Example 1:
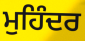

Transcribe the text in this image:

ਮੁਹਿੰਦਰ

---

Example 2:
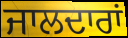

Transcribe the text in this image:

ਜਾਲਦਾਰਾਂ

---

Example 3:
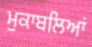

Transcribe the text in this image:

ਮੁਕਾਬਲਿਆਂ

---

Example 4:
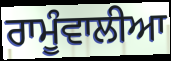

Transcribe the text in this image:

ਰਾਮੂੰਵਾਲੀਆ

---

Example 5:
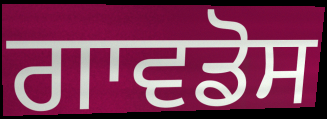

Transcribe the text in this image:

ਗਾਵਡੋਸ